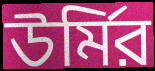
উর্মির